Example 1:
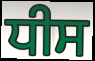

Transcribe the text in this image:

ਧੀਸ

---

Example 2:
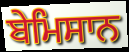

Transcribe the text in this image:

ਬੇਮਿਸਾਨ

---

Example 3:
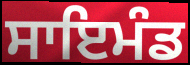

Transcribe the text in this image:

ਸਾਇਮੰਡ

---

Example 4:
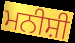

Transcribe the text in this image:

ਮਨੀਸ਼ੀ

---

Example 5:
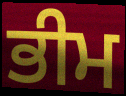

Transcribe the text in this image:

ਭੀਮ